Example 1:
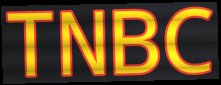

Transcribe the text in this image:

TNBC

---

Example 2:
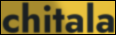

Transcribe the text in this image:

chitala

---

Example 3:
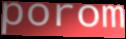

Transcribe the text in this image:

porom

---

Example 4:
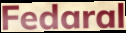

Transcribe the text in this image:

Fedaral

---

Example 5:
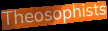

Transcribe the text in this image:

Theosophists